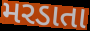
મરડાતા